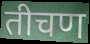
तीचण